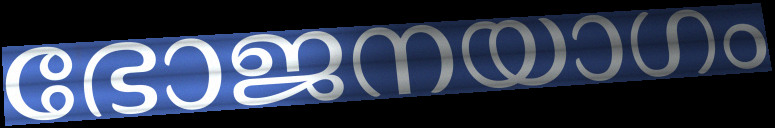
ഭോജനയാഗം